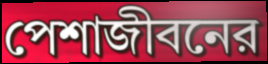
পেশাজীবনের